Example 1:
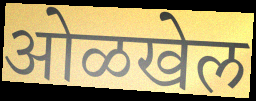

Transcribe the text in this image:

ओळखेल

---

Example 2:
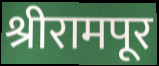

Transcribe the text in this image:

श्रीरामपूर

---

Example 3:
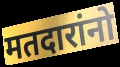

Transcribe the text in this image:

मतदारांनो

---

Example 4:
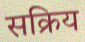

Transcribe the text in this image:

सक्रिय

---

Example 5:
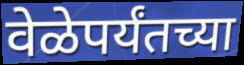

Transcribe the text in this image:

वेळेपर्यंतच्या